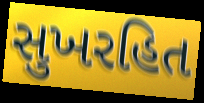
સુખરહિત